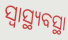
ସ୍ୱାସ୍ଥ୍ୟବସ୍ଥା